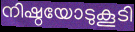
നിഷ്ഠയോടുകൂടി